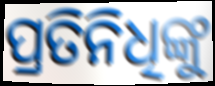
ପ୍ରତିନିଧିଙ୍କୁ